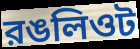
রঙলিওট